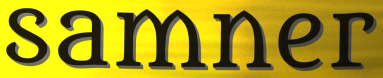
samner